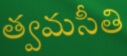
త్వమసీతి